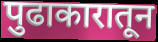
पुढाकारातून